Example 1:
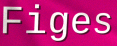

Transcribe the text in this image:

Figes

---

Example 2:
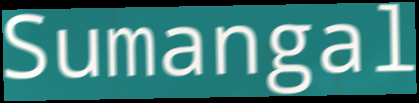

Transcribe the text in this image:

Sumangal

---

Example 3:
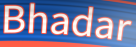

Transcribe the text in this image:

Bhadar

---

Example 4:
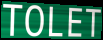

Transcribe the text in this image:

TOLET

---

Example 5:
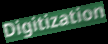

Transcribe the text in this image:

Digitization